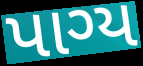
પાગ્ય